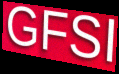
GFSI